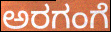
ಅರಗಂಗೆ